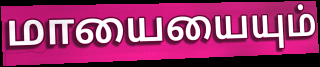
மாயையையும்